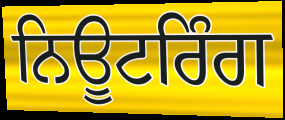
ਨਿਊਟਰਿੰਗ